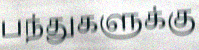
பந்துகளுக்கு